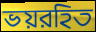
ভয়রহিত